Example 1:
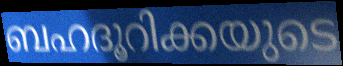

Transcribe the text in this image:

ബഹദൂറിക്കയുടെ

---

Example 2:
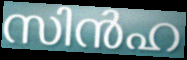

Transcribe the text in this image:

സിൻഹ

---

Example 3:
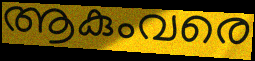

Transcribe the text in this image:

ആകുംവരെ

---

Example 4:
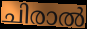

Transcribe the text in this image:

ചിരാൽ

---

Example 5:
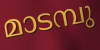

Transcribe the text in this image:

മാടമ്പു